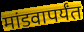
मांडवापर्यंत